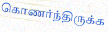
கொணர்ந்திருக்க